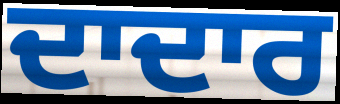
ਦਾਦਾਰ